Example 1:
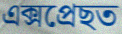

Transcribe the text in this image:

এক্সপ্ৰেছত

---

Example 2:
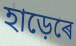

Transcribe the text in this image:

হাড়েৰে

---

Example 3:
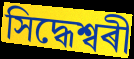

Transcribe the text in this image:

সিদ্ধেশ্বৰী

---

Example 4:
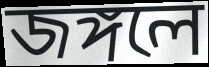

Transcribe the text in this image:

জঙ্গলে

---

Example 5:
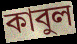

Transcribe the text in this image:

কাবুল